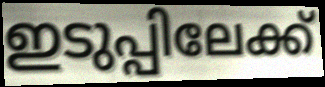
ഇടുപ്പിലേക്ക്